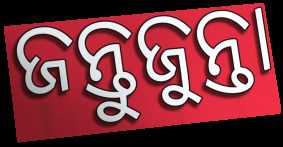
ଜନ୍ତୁଜୁନ୍ତା